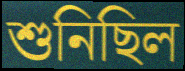
শুনিছিল